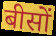
बीसों